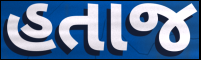
હતાજ